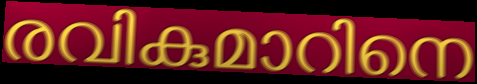
രവികുമാറിനെ